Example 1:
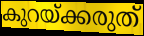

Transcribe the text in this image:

കുറയ്ക്കരുത്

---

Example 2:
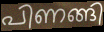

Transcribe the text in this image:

പിണങ്ങി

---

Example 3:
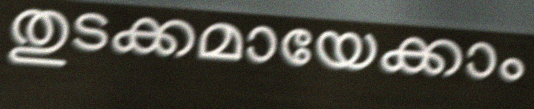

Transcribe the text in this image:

തുടക്കമായേക്കാം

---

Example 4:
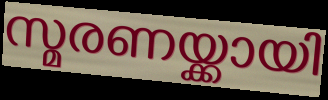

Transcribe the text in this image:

സ്മരണയ്ക്കായി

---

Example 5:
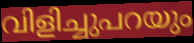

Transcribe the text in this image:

വിളിച്ചുപറയും